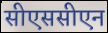
सीएससीएन